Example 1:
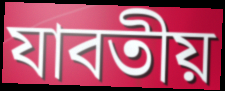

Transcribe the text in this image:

যাবতীয়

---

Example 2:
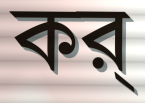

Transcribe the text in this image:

কর্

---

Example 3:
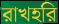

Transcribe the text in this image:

রাখহরি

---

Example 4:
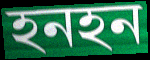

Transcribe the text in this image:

হনহন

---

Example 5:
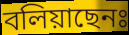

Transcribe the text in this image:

বলিয়াছেনঃ